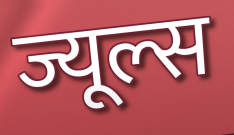
ज्यूल्स